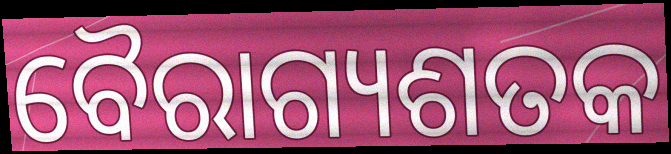
ବୈରାଗ୍ୟଶତକ